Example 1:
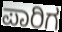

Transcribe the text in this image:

ಪಾರಿಗ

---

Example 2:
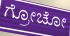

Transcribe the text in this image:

ಗ್ರೋಚೋ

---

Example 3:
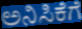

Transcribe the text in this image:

ಅನಿಸಿಕೆಗೆ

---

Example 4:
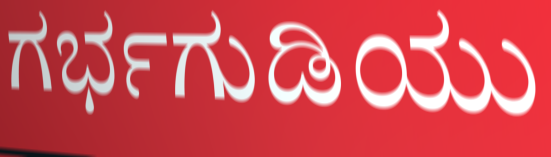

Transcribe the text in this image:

ಗರ್ಭಗುಡಿಯು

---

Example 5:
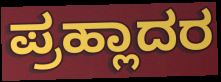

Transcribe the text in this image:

ಪ್ರಹ್ಲಾದರ